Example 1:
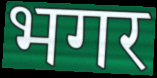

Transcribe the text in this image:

भगर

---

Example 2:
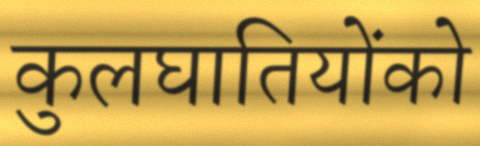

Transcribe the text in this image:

कुलघातियोंको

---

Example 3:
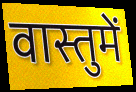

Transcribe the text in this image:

वास्तुमें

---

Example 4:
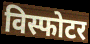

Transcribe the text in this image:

विस्फोटर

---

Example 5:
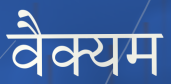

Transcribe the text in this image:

वैक्यम